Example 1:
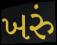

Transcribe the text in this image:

ખરું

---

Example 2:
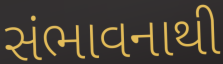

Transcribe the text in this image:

સંભાવનાથી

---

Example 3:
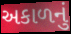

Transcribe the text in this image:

અકાળનું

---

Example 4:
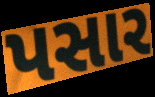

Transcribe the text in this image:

પસાર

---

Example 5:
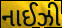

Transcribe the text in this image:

નાઈઝી